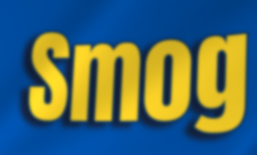
Smog